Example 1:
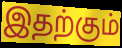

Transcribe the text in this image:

இதற்கும்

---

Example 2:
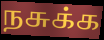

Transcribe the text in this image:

நசுக்க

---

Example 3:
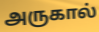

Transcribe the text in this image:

அருகால்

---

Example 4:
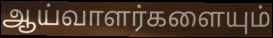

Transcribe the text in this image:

ஆய்வாளர்களையும்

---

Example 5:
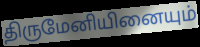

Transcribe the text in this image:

திருமேனியினையும்